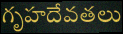
గృహదేవతలు